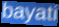
bayati